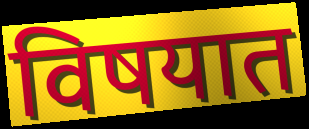
विषयात